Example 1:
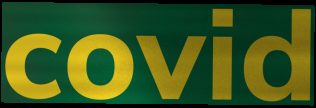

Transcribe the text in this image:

covid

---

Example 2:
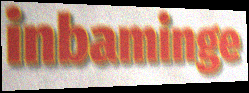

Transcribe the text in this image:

inbaminge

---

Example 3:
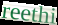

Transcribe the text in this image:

reethi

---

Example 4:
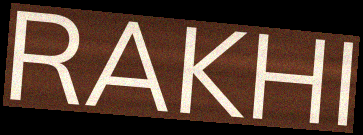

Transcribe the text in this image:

RAKHI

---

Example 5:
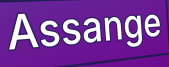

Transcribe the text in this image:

Assange